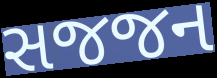
સજજન